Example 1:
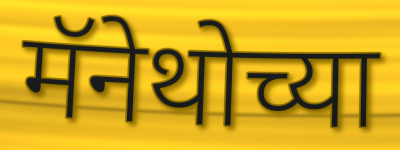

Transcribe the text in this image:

मॅनेथोच्या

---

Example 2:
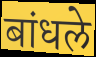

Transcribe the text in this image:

बांधले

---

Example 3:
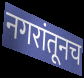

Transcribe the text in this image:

नगरांतूनच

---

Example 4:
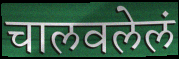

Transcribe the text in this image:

चालवलेलं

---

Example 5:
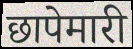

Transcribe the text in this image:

छापेमारी